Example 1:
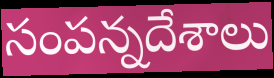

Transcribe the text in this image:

సంపన్నదేశాలు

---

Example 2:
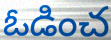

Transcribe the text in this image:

ఓడించ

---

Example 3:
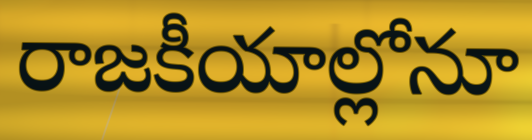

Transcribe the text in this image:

రాజకీయాల్లోనూ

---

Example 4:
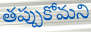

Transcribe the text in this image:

తప్పుకోమని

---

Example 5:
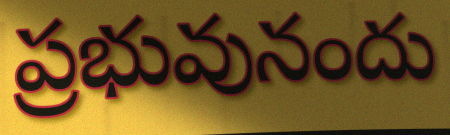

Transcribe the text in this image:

ప్రభువునందు